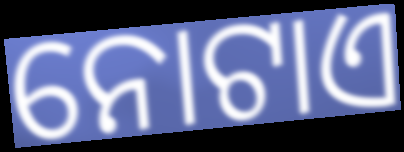
ନୋଟାଏ